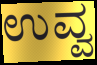
ಉವ್ವ